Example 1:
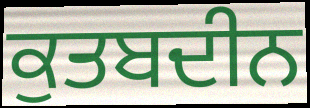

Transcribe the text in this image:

ਕੁਤਬਦੀਨ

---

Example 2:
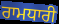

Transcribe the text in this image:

ਰਾਮਧਾਰੀ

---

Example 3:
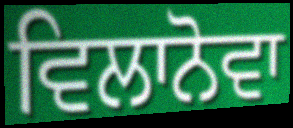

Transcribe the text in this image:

ਵਿਲਾਨੋਵਾ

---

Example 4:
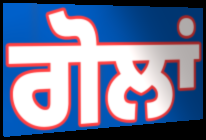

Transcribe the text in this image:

ਗੋਲਾਂ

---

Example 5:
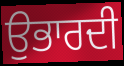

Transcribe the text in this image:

ਉਭਾਰਦੀ